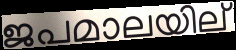
ജപമാലയില്